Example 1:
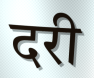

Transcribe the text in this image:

दरी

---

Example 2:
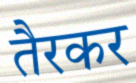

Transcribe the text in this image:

तैरकर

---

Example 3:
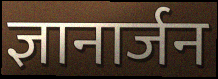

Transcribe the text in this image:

ज्ञानार्जन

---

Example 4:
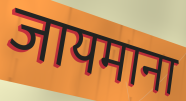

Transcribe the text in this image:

जायमाना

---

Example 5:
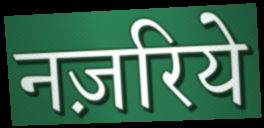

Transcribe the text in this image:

नज़रिये